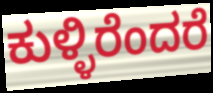
ಕುಳ್ಳಿರೆಂದರೆ